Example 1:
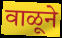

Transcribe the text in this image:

वाळूने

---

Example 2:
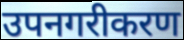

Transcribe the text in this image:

उपनगरीकरण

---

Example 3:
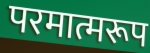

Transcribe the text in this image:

परमात्मरूप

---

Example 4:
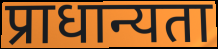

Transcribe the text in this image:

प्राधान्यता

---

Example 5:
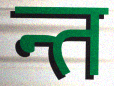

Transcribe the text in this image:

न्त